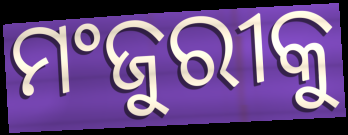
ମଂଜୁରୀକୁ